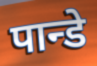
पान्डे